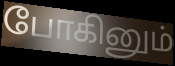
போகினும்